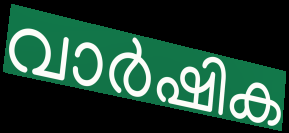
വാർഷിക